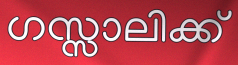
ഗസ്സാലിക്ക്